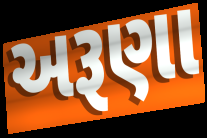
અરૂણા